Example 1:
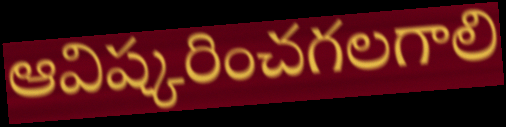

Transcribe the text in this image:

ఆవిష్కరించగలగాలి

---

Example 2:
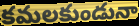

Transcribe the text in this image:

కమలకుండునా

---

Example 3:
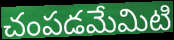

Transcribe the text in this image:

చంపడమేమిటి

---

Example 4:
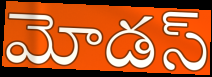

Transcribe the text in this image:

మోడస్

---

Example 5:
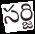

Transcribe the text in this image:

సర్జి